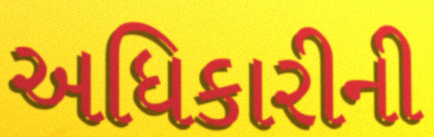
અધિકારીની